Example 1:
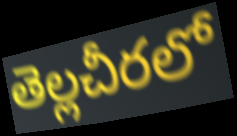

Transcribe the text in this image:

తెల్లచీరలో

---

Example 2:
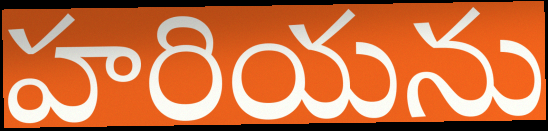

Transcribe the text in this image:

హరియను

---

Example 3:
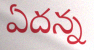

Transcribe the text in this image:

ఏదన్న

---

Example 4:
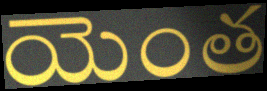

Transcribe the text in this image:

యెంత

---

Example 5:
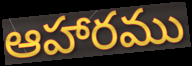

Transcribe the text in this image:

ఆహారము